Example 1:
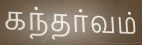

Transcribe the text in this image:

கந்தர்வம்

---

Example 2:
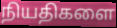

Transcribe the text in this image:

நியதிகளை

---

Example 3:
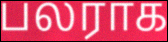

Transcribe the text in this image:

பலராக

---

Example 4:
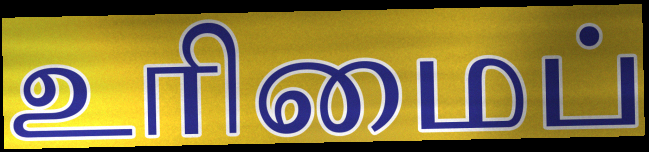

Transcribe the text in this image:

உரிமைப்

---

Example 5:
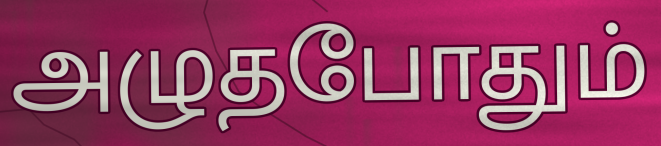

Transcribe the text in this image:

அழுதபோதும்